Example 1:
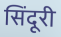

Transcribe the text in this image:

सिंदूरी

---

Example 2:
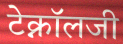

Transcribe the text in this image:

टेक्नॉलजी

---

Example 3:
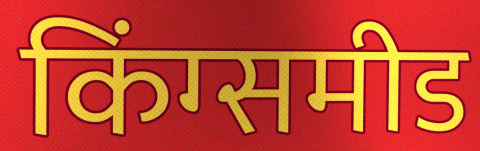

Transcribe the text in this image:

किंग्समीड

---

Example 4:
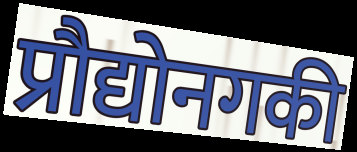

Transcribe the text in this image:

प्रौद्योनगकी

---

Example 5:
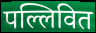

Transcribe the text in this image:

पल्लिवित